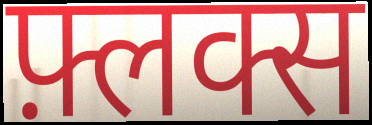
फ़्लक्स